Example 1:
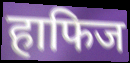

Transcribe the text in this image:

हाफिज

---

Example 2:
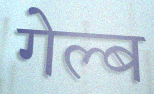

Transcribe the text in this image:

गेल्ब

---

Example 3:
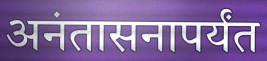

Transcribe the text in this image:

अनंतासनापर्यंत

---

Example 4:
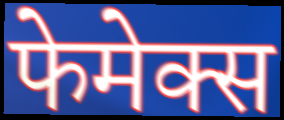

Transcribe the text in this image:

फेमेक्स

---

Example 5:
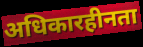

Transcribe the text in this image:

अधिकारहीनता